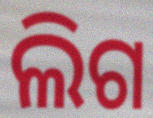
ଲିଗ